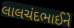
લાલચંદભાઈને